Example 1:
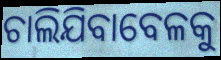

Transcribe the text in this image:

ଚାଲିଯିବାବେଳକୁ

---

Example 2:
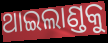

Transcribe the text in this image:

ଥାଇଲାଣ୍ଡକୁ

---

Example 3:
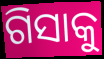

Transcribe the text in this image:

ଗିସାକୁ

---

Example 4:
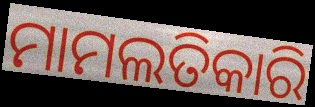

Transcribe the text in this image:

ମାମଲତିକାରି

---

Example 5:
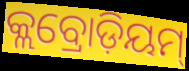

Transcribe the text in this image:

କ୍ଲବ୍ରୋଡ଼ିୟମ୍